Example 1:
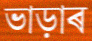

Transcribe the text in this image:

ভাড়াৰ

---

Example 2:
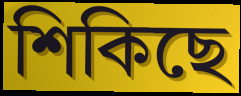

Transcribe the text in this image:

শিকিছে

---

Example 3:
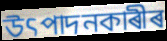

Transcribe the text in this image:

উৎপাদনকাৰীৰ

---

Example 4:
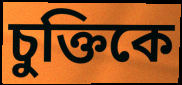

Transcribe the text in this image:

চুক্তিকে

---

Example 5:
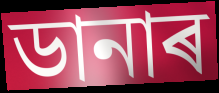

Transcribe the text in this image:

ডানাৰ